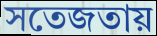
সতেজতায়